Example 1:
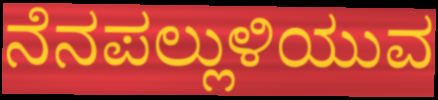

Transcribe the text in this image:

ನೆನಪಲ್ಲುಳಿಯುವ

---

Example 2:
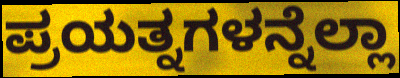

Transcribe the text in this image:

ಪ್ರಯತ್ನಗಳನ್ನೆಲ್ಲಾ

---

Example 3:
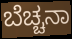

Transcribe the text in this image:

ಬೆಚ್ಚನಾ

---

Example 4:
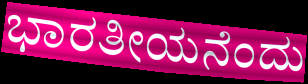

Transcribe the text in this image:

ಭಾರತೀಯನೆಂದು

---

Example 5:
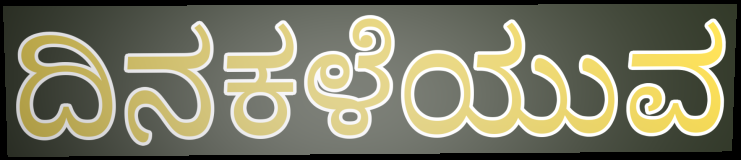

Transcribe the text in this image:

ದಿನಕಳೆಯುವ